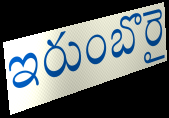
ఇరుంబొరై